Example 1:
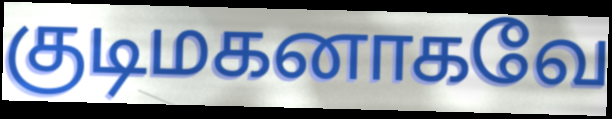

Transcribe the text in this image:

குடிமகனாகவே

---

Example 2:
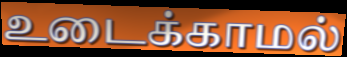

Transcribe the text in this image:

உடைக்காமல்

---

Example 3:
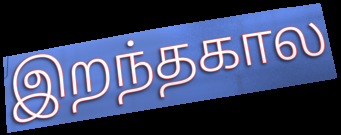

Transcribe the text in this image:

இறந்தகால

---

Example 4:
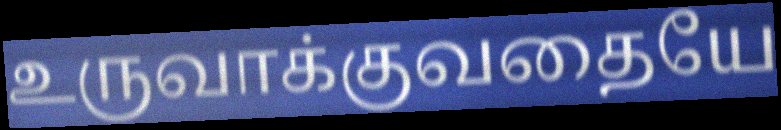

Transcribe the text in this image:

உருவாக்குவதையே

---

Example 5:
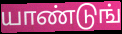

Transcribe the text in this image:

யாண்டுங்